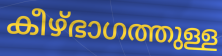
കീഴ്ഭാഗത്തുള്ള